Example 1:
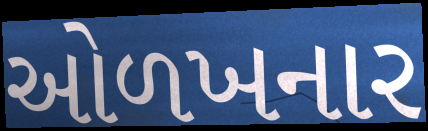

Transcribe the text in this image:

ઓળખનાર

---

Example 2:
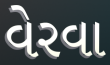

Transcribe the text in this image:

વેરવા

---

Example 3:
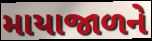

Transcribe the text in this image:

માયાજાળને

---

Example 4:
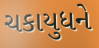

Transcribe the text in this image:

ચકાયુધને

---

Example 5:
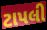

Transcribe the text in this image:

ટાપલી